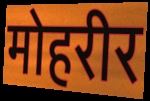
मोहरीर